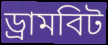
ড্রামবিট